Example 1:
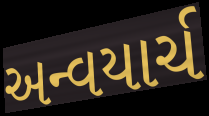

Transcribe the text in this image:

અન્વયાર્ચ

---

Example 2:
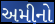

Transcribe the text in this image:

અમીનો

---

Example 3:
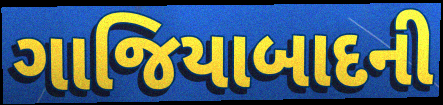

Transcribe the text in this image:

ગાજિયાબાદની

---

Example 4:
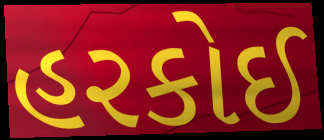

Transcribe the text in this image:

હરકોઈ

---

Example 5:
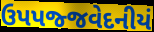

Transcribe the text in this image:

ઉપપજ્જવેદનીયં